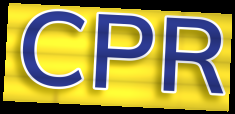
CPR